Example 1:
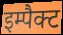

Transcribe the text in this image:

इम्पैक्ट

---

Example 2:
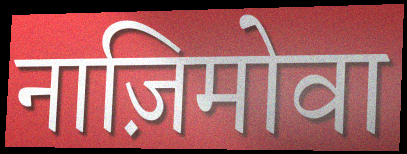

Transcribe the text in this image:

नाज़िमोवा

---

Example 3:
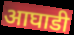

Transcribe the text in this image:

आघाडी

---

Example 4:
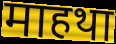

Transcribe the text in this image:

माहथा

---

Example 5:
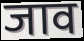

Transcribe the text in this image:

जाव